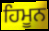
ਹਿਮੂਨ